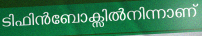
ടിഫിൻബോക്സിൽനിന്നാണ്